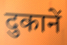
दुकानें